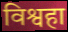
विश्वहा